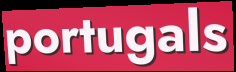
portugals